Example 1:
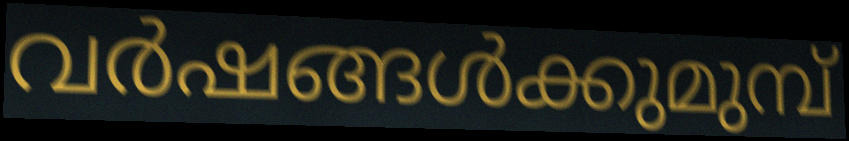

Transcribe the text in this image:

വർഷങ്ങൾക്കുമുമ്പ്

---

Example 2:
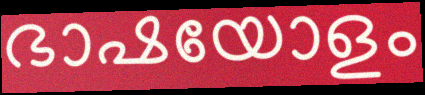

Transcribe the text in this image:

ഭാഷയോളം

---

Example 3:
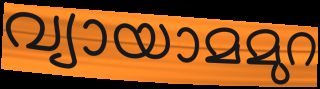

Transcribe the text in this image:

വ്യായാമമുറ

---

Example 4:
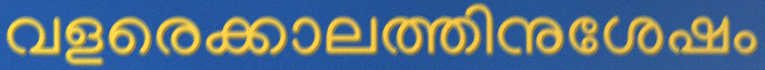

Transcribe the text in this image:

വളരെക്കാലത്തിനുശേഷം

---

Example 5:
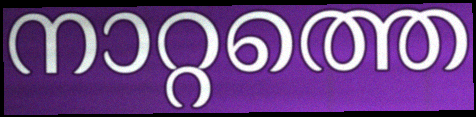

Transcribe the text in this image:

നാറ്റത്തെ